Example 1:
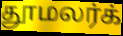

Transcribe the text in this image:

தூமலர்க்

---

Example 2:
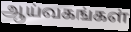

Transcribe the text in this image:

ஆய்வகங்கள்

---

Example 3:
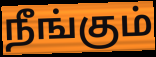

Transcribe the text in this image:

நீங்கும்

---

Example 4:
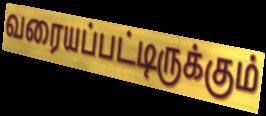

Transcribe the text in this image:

வரையப்பட்டிருக்கும்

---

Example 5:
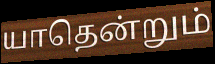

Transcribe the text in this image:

யாதென்றும்